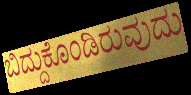
ಬಿದ್ದುಕೊಂಡಿರುವುದು